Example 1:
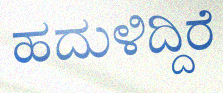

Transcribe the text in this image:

ಹದುಳಿದ್ದಿರೆ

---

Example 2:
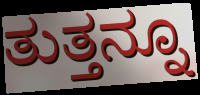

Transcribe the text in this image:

ತುತ್ತನ್ನೂ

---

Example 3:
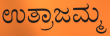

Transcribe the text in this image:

ಉತ್ರಾಜಮ್ಮ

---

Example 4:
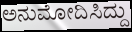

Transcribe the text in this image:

ಅನುಮೋದಿಸಿದ್ದು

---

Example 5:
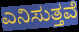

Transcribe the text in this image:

ಎನಿಸುತ್ತವೆ